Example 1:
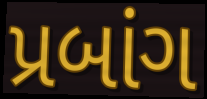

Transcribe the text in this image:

પ્રબાંગ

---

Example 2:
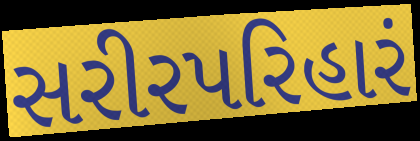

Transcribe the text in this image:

સરીરપરિહારં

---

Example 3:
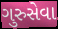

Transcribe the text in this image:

ગુરુસેવા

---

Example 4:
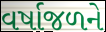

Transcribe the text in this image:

વર્ષાજળને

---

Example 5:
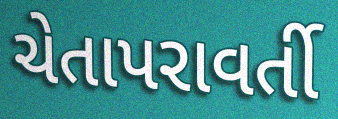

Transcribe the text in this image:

ચેતાપરાવર્તી